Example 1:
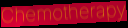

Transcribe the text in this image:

Chemotherapy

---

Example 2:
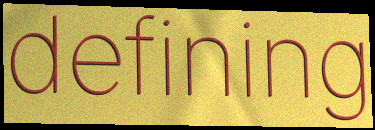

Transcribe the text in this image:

defining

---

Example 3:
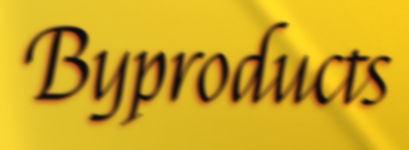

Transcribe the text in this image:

Byproducts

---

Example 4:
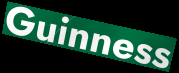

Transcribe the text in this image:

Guinness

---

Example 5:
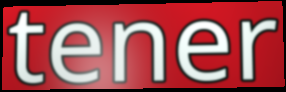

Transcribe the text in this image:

tener